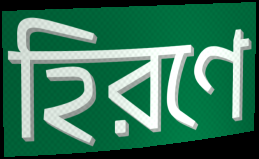
হিরণে